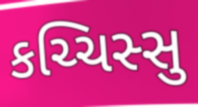
કચ્ચિસ્સુ